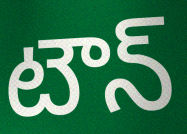
టౌన్